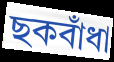
ছকবাঁধা